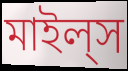
মাইল্‌স